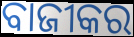
ବାଜୀକର